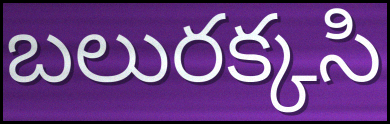
బలురక్కసి